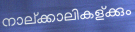
നാല്ക്കാലികള്ക്കും